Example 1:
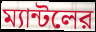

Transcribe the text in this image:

ম্যান্টলের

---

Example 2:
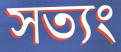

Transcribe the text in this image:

সত্যং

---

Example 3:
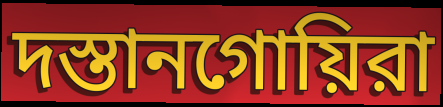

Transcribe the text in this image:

দস্তানগোয়িরা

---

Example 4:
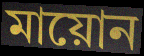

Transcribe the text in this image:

মায়োন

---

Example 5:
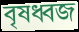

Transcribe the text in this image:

বৃষধ্বজ